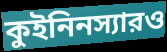
কুইনিনস্যারও